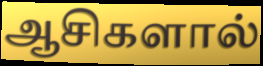
ஆசிகளால்